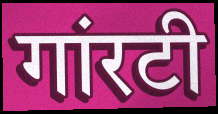
गांरटी